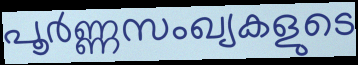
പൂർണ്ണസംഖ്യകളുടെ